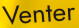
Venter